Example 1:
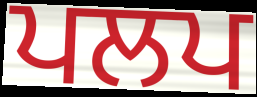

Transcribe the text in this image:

ਪਲਪ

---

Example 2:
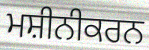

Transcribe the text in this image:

ਮਸ਼ੀਨੀਕਰਨ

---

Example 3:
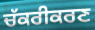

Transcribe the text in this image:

ਚੱਕਰੀਕਰਣ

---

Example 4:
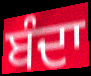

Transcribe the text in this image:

ਬੰਦਾ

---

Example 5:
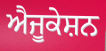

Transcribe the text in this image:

ਐਜੂਕੇਸ਼ਨ